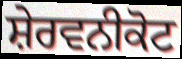
ਸ਼ੇਰਵਨੀਕੋਟ